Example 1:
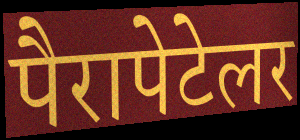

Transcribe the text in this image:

पैरापेटेलर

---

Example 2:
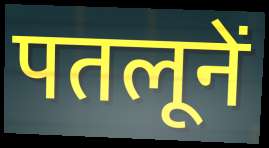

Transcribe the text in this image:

पतलूनें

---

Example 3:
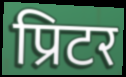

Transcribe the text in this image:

प्रिटर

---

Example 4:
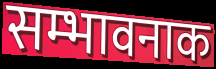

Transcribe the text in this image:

सम्भावनाक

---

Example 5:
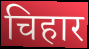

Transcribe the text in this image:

चिहार